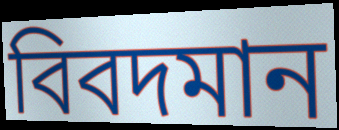
বিবদমান